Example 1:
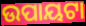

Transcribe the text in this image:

ଉପାୟଟା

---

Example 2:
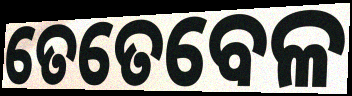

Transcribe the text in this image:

ତେତେବେଳ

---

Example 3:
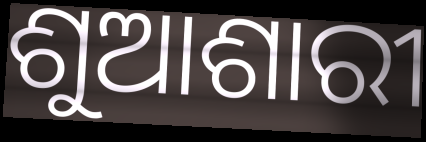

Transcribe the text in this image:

ଶୁଆଶାରୀ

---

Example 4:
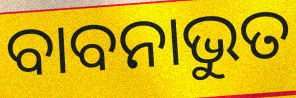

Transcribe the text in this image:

ବାବନାଭୁତ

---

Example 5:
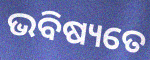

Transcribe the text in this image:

ଭବିଷ୍ୟତେ